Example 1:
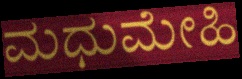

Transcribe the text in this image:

ಮಧುಮೇಹಿ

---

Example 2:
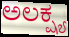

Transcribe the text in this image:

ಅಲಕ್ಷ್ಯ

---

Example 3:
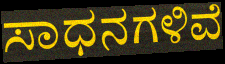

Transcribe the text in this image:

ಸಾಧನಗಳಿವೆ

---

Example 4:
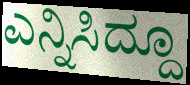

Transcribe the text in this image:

ಎನ್ನಿಸಿದ್ದೂ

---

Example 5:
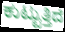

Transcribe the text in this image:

ಕುಟ್ಟುತ್ತಿದೆ